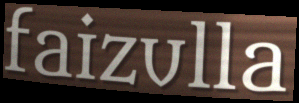
faizulla